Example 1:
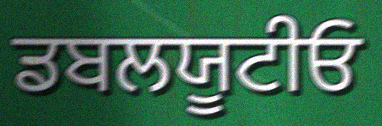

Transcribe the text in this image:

ਡਬਲਯੂਟੀਓ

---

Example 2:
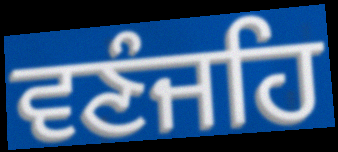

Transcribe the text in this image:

ਵਣੰਜਹਿ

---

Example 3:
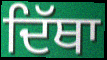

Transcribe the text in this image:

ਦਿੱਥਾ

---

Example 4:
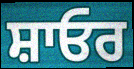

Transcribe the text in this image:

ਸ਼ਾਓਰ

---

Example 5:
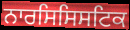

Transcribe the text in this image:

ਨਾਰਸਿਸਿਸਟਿਕ